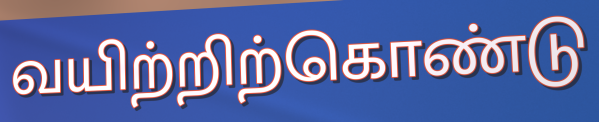
வயிற்றிற்கொண்டு